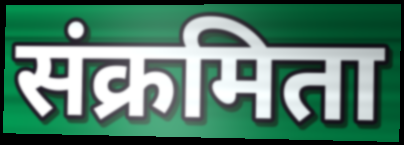
संक्रमिता